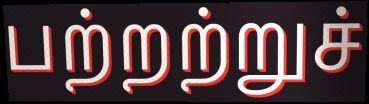
பற்றற்றுச்